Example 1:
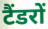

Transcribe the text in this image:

टैंडरों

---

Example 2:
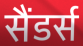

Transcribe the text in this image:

सैंडर्स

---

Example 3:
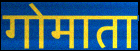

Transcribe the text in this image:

गोमाता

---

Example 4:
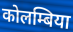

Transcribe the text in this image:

कोलम्बिया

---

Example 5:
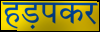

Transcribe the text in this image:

हड़पकर